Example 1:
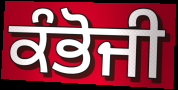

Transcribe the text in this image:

ਕੰਭੋਜੀ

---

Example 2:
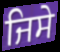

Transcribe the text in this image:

ਜਿਸੇ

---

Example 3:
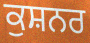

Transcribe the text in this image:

ਕੁਸ਼ਨਰ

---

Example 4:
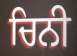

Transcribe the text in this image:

ਚਿਨੀ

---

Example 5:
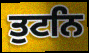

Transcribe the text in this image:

ਤੁਟਨਿ